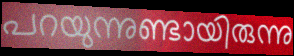
പറയുന്നുണ്ടായിരുന്നു